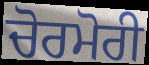
ਚੋਰਮੋਰੀ